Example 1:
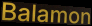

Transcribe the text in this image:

Balamon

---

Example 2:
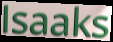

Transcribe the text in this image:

Isaaks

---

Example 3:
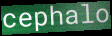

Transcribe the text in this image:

cephalo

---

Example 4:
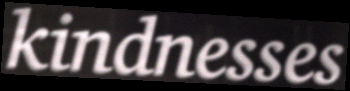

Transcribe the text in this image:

kindnesses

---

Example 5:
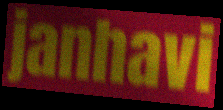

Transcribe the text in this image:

janhavi